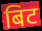
बिट